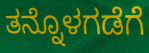
ತನ್ನೊಳಗಡೆಗೆ